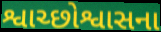
શ્વાચ્છોશ્વાસના